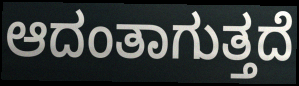
ಆದಂತಾಗುತ್ತದೆ